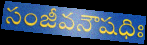
సంజీవనౌషధిః